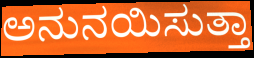
ಅನುನಯಿಸುತ್ತಾ